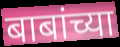
बाबांच्या